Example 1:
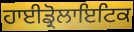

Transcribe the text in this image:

ਹਾਈਡ੍ਰੋਲਾਇਟਿਕ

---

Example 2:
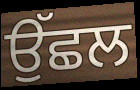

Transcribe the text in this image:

ਉੱਛਲ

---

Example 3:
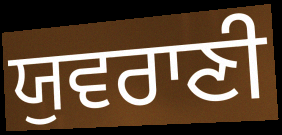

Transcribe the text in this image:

ਯੁਵਰਾਣੀ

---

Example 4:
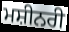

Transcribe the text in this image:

ਮਸ਼ੀਨਰੀ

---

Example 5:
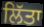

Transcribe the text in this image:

ਲਿੱਤਾ